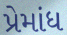
પ્રેમાંધ